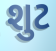
શુટ